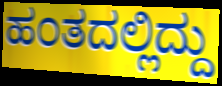
ಹಂತದಲ್ಲಿದ್ದು